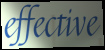
effective